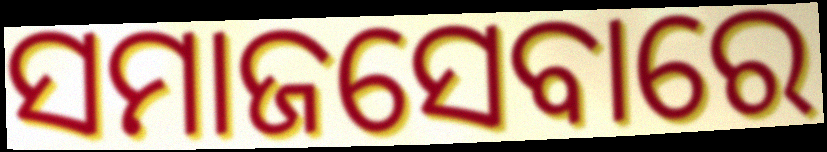
ସମାଜସେବାରେ